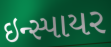
ઇન્સ્પાયર